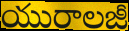
యురాలజీ